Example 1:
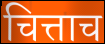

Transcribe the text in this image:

चित्ताच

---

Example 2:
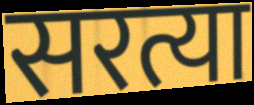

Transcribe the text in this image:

सरत्या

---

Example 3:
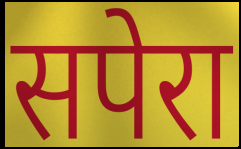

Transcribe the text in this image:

सपेरा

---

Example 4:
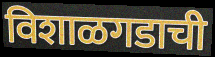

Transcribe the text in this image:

विशाळगडाची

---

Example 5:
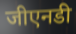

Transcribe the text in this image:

जीएनडी